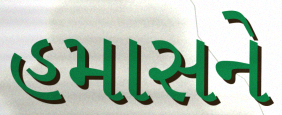
હમાસને